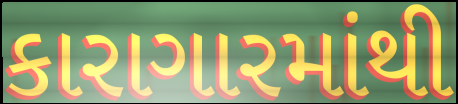
કારાગારમાંથી